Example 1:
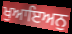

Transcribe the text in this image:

ਖੁਆਇਅਨੁ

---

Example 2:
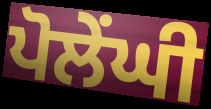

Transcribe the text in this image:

ਪੋਲੇਂਘੀ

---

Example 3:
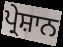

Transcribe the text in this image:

ਪ੍ਰੇਸ਼ਾਨ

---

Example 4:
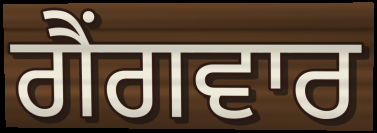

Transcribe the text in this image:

ਗੈਂਗਵਾਰ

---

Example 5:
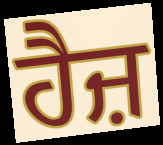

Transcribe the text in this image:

ਹੈਜ਼